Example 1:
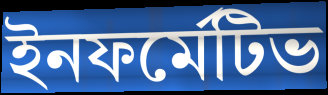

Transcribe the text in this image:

ইনফর্মেটিভ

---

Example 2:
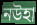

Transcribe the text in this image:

নউহা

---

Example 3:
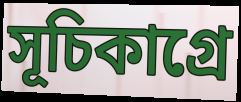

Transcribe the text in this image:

সূচিকাগ্রে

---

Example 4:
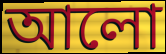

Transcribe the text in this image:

আলো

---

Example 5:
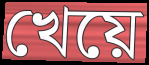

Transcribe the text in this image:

খেয়ে